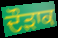
ਦੌੜਾਕ